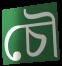
চৌ